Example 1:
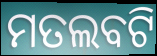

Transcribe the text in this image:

ମତଲବଟି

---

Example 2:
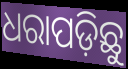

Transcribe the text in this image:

ଧରାପଡ଼ିଛୁ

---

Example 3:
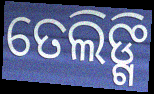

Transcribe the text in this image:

ତେଲିଙ୍ଗି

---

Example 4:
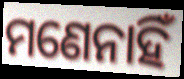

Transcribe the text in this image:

ମଣେନାହିଁ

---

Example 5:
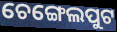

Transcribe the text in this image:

ଚେଙ୍ଗେଲପୁଟ